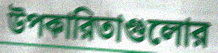
উপকারিতাগুলোর